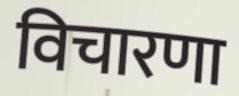
विचारणा